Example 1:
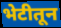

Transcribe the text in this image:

भेटीतून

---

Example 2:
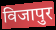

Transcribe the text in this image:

विजापुर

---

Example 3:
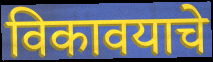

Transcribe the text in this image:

विकावयाचे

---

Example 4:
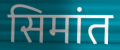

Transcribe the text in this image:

सिमांत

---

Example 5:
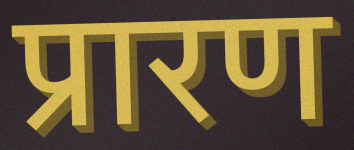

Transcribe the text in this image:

प्रारण